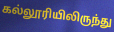
கல்லூரியிலிருந்து